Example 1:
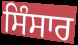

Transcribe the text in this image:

ਸਿੰਸਾਰ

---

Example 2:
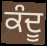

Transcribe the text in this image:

ਕੰਦੂ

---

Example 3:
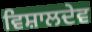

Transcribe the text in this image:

ਵਿਸ਼ਾਲਦੇਵ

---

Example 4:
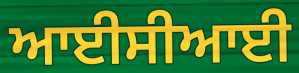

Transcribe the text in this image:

ਆਈਸੀਆਈ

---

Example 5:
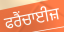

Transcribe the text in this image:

ਫਰੈਂਚਾਈਜ਼